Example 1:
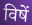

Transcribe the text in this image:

विषें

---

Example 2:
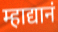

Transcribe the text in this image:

म्हाद्यानं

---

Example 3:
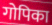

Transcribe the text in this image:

गोपिका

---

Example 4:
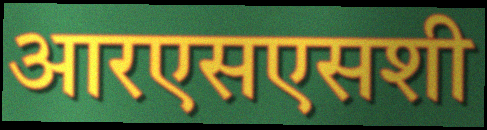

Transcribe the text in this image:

आरएसएसशी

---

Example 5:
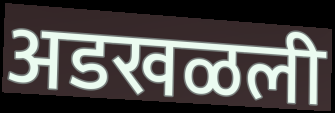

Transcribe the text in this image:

अडखळली